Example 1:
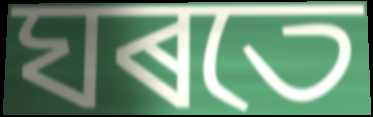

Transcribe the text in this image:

ঘৰতে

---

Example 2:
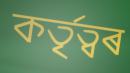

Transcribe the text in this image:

কৰ্তৃত্বৰ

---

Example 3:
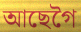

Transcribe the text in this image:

আছেগৈ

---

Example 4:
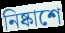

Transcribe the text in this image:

নিষ্কাশে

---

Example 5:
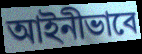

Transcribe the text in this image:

আইনীভাবে